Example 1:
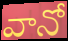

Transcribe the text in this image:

వానో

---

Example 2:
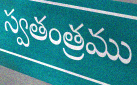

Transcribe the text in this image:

స్వతంత్రము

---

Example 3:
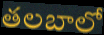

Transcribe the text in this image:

తలబాలో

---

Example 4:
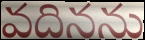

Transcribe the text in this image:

వదినను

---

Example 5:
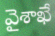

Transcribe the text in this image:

వైశాఖే